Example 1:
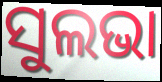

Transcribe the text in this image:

ସୁଲଭା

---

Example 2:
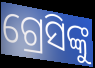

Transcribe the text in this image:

ଗ୍ରେସିଙ୍କୁ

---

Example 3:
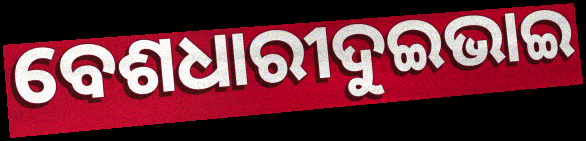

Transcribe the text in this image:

ବେଶଧାରୀଦୁଇଭାଇ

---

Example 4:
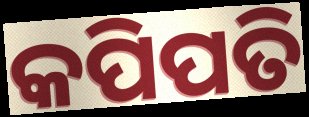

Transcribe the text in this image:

କପିପତି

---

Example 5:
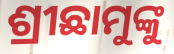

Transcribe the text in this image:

ଶ୍ରୀଛାମୁଙ୍କୁ